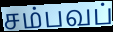
சம்பவப்